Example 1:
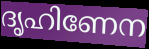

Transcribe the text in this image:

ദൃഹിണേന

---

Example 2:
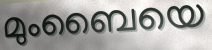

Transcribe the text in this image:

മുംബൈയെ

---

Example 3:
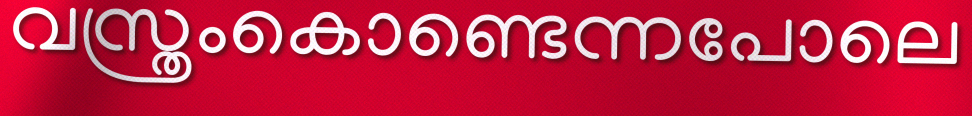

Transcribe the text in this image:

വസ്ത്രംകൊണ്ടെന്നപോലെ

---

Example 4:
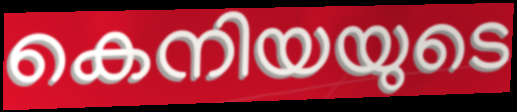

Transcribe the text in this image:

കെനിയയുടെ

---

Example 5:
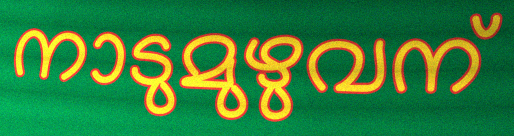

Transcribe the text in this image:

നാടുമുഴുവന്